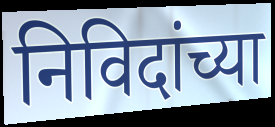
निविदांच्या